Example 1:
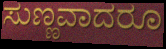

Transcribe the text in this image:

ಸುಣ್ಣವಾದರೂ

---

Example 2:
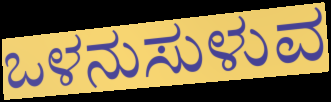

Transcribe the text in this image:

ಒಳನುಸುಳುವ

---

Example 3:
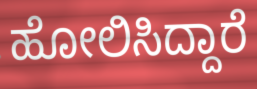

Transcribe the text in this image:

ಹೋಲಿಸಿದ್ದಾರೆ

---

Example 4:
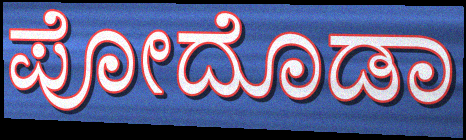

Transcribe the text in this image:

ಪೋದೊಡಾ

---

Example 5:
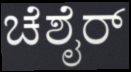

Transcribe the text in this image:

ಚೆಶೈರ್